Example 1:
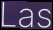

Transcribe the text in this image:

Las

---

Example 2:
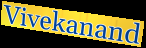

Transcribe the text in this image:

Vivekanand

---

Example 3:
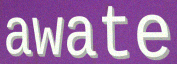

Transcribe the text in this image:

awate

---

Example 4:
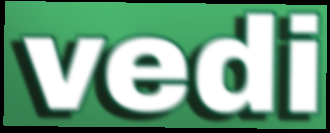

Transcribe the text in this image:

vedi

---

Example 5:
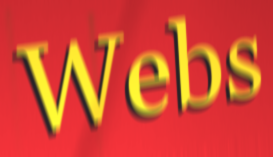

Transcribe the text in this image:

Webs